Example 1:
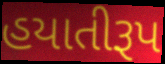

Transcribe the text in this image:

હયાતીરૂપ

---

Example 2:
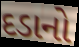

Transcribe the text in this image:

દડાનો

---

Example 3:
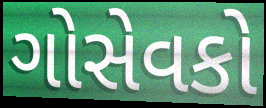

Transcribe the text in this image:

ગોસેવકો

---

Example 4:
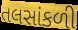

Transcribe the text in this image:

તલસાંકળી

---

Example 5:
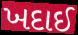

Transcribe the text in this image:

ખદાઈ